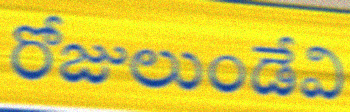
రోజులుండేవి